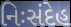
નિઃસંદેહ